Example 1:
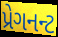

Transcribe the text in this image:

પ્રેગનન્ટ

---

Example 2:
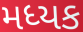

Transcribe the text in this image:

મધ્યક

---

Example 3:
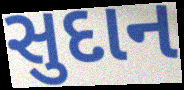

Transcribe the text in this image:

સુદાન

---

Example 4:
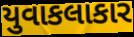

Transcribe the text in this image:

યુવાકલાકાર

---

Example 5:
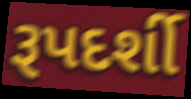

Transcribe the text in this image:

રૂપદર્શી